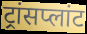
ट्रांसप्लांट